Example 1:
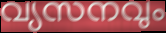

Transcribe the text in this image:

വ്യസനവും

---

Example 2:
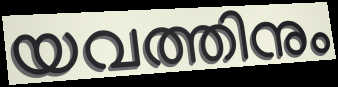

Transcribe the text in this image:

യവത്തിനും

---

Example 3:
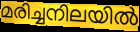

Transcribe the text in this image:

മരിച്ചനിലയിൽ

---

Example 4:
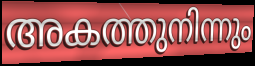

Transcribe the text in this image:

അകത്തുനിന്നും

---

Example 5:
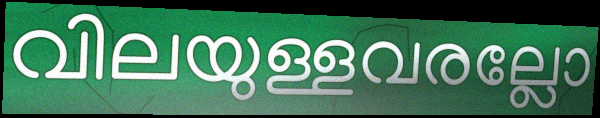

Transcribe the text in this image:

വിലയുള്ളവരല്ലോ